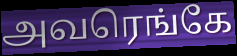
அவரெங்கே